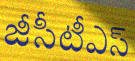
జీసీటీఎస్